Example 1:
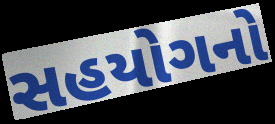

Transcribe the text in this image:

સહયોગનો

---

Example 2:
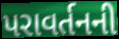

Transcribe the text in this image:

પરાવર્તનની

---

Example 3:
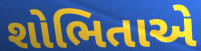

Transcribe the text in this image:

શોભિતાએ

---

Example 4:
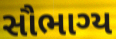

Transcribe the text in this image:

સૌભાગ્ય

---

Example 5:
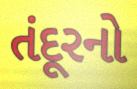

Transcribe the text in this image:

તંદૂરનો